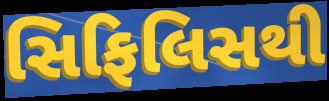
સિફિલિસથી